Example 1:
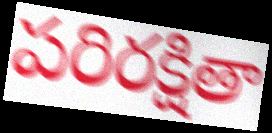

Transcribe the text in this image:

పరిరక్షితా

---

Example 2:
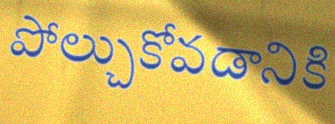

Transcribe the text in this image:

పోల్చుకోవడానికి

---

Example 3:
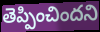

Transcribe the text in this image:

తెప్పించిందని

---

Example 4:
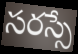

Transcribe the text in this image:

సరస్సే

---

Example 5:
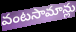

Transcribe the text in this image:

వంటసామాన్లు